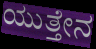
ಯುತ್ತೇನ